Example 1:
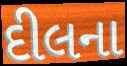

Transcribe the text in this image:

દીલના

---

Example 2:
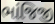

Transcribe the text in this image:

ભાંજિજી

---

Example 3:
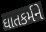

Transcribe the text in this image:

ઘાતકર્મને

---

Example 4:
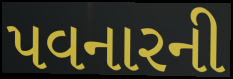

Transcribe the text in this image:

પવનારની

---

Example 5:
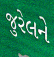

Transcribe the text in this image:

જુરેલને